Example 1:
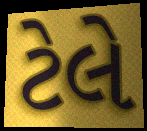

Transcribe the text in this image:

ટેલે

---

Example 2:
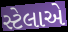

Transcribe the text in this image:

સ્ટેલાએ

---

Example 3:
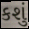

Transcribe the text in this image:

કશું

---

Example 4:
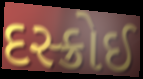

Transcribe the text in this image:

દસ્ક્રોઈ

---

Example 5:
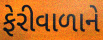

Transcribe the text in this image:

ફેરીવાળાને